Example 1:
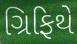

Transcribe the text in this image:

ગ્રિફિથે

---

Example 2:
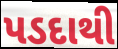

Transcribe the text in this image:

પડદાથી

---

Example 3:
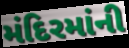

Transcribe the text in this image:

મંદિરમાંની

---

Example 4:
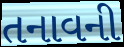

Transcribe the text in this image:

તનાવની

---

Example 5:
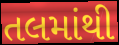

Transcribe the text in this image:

તલમાંથી